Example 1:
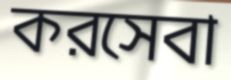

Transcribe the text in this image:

করসেবা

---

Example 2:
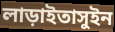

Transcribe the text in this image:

লাড়াইতাসুইন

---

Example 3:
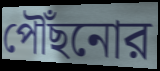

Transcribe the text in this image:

পৌঁছনোর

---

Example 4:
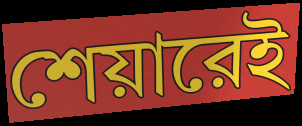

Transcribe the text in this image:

শেয়ারেই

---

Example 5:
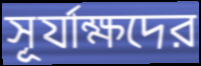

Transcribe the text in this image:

সূর্যাক্ষদের